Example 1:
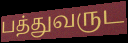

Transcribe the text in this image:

பத்துவருட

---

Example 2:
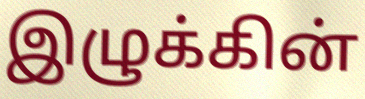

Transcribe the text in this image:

இழுக்கின்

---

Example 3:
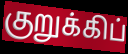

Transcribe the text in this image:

குறுக்கிப்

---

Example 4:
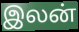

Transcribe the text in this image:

இலன்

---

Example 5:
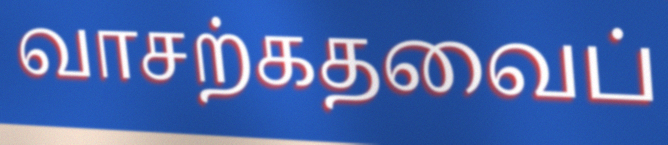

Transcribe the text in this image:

வாசற்கதவைப்